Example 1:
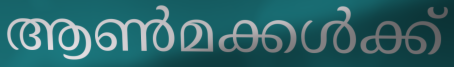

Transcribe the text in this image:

ആൺമക്കൾക്ക്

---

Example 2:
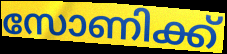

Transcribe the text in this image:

സോണിക്ക്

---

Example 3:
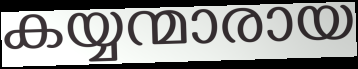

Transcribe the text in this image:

കയ്യന്മാരായ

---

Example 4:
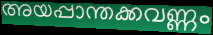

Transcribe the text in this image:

അയപ്പാന്തക്കവണ്ണം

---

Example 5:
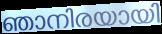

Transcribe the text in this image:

ഞാനിരയായി